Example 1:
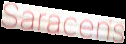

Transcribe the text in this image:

Saracens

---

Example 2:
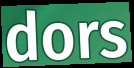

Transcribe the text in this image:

dors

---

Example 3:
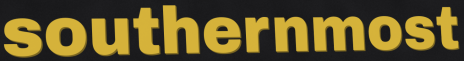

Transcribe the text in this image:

southernmost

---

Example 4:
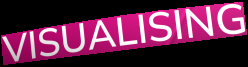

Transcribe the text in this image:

VISUALISING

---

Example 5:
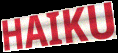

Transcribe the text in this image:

HAIKU